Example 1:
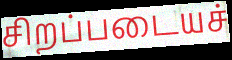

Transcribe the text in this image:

சிறப்படையச்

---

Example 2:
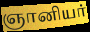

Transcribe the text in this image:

ஞானியர்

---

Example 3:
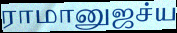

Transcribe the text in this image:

ராமானுஜச்ய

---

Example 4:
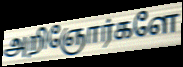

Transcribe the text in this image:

அறிஞோர்களே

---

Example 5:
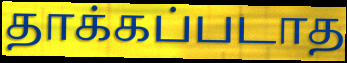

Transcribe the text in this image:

தாக்கப்படாத